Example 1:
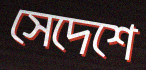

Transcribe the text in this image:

সেদেশে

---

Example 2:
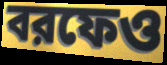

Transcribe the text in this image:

বরফেও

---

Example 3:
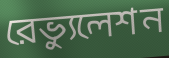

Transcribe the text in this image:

রেভ্যুলেশন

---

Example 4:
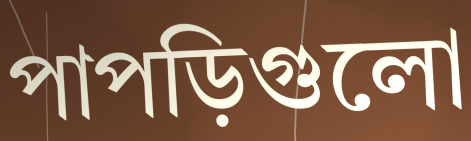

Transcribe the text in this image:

পাপড়িগুলো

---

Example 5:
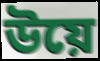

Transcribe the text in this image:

উয়ে